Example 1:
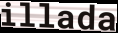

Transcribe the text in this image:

illada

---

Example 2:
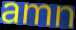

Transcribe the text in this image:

amn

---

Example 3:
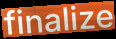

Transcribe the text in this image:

finalize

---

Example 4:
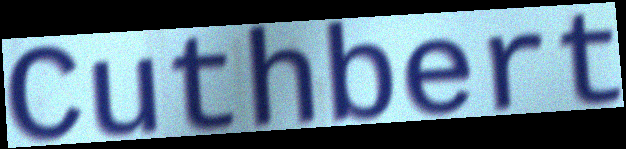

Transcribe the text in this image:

Cuthbert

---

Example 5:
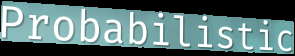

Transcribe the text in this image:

Probabilistic